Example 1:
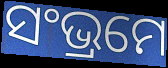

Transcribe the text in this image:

ସଂଭ୍ରମେ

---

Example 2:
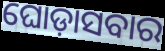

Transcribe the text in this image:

ଘୋଡ଼ାସବାର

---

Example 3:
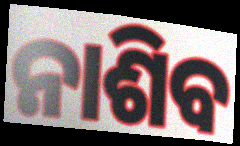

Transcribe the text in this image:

ନାଶିବ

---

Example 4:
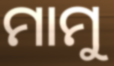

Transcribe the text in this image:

ମାମୁ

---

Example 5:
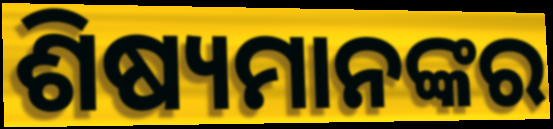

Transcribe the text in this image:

ଶିଷ୍ୟମାନଙ୍କର